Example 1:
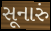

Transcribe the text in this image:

સૂનારું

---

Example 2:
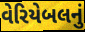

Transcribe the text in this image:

વેરિયેબલનું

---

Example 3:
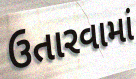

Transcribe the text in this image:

ઉતારવામાં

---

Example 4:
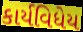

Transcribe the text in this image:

કાર્યવિધેય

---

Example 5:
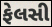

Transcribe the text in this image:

ફેલસી